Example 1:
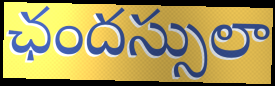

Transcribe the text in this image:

ఛందస్సులా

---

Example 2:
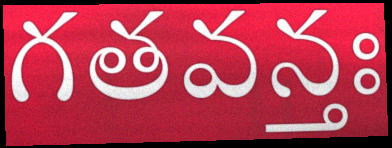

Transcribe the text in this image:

గతవన్తః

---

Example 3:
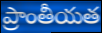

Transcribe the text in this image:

ప్రాంతీయత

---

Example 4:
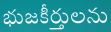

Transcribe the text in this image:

భుజకీర్తులను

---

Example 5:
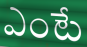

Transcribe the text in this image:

ఎంటే